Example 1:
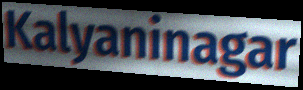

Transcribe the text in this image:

Kalyaninagar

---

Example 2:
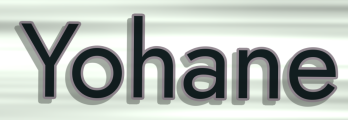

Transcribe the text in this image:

Yohane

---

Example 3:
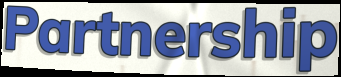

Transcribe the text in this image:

Partnership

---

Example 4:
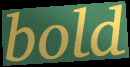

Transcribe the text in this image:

bold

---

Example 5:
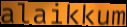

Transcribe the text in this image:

alaikkum